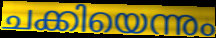
ചക്കിയെന്നും